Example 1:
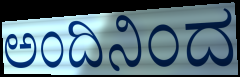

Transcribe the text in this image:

ಅಂದಿನಿಂದ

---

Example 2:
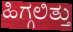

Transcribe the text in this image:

ಹಿಗ್ಗಲಿತ್ತು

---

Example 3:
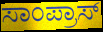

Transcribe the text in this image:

ಸಾಂಪ್ರಾಸ್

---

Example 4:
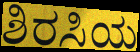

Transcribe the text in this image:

ಶಿರಸಿಯ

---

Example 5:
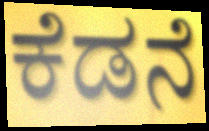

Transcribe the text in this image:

ಕೆಡನೆ